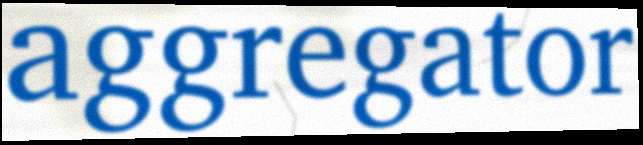
aggregator